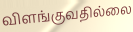
விளங்குவதில்லை